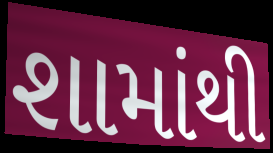
શામાંથી